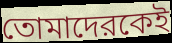
তোমাদেরকেই